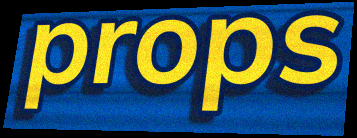
props